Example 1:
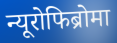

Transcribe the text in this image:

न्यूरोफिब्रोमा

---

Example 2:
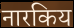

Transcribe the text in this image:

नारकिय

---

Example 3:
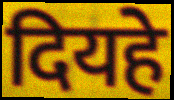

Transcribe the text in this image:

दियहे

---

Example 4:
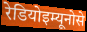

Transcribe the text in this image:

रेडियोइम्यूनोसे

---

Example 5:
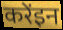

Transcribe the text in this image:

करेंइन